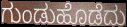
ಗುಂಡುಹೊಡೆದು